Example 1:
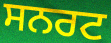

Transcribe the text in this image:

ਸਨਰਟ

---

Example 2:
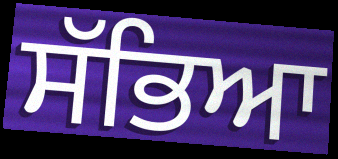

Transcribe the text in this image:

ਸੱਭਿਆ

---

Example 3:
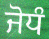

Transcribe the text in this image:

ਜੋਧੰ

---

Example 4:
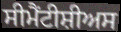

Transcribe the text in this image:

ਸੀਮੈਂਟੀਸ਼ੀਅਸ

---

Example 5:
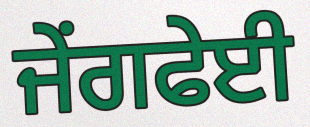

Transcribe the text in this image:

ਜੇਂਗਫੇਈ